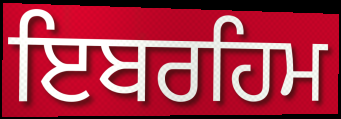
ਇਬਰਹਿਮ